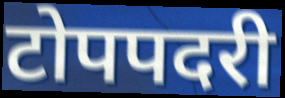
टोपपदरी